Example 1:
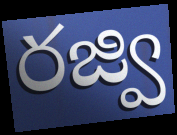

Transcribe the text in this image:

రజ్వి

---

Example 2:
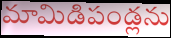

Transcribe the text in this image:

మామిడిపండ్లను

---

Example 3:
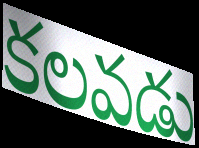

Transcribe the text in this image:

కలవడు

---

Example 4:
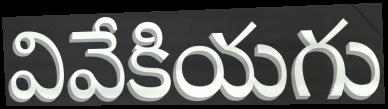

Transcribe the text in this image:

వివేకియగు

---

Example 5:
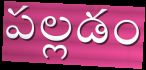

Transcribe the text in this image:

పల్లడం